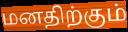
மனதிற்கும்